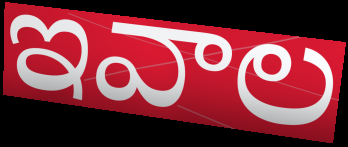
ఇవాల